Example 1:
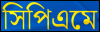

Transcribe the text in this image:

সিপিএমে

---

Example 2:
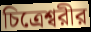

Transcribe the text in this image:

চিত্রেশ্বরীর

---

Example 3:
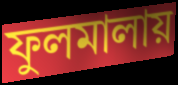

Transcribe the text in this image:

ফুলমালায়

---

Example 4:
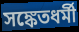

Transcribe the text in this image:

সঙ্কেতধর্মী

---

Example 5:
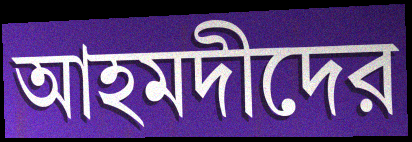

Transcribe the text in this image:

আহমদীদের